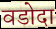
वडोदा